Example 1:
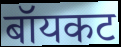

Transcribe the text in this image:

बॉयकट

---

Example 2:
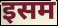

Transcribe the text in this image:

इसम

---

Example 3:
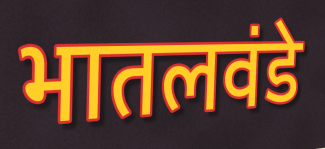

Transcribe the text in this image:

भातलवंडे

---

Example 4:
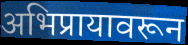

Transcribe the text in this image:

अभिप्रायावरून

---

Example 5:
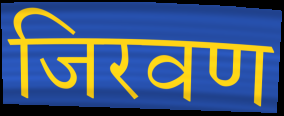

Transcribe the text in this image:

जिरवण